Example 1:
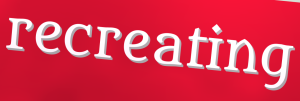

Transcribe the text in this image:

recreating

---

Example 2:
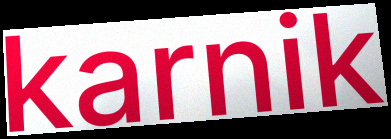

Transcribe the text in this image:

karnik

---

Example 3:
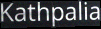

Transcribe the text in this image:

Kathpalia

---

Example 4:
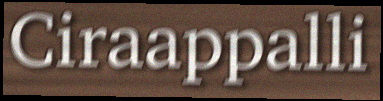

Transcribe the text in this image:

Ciraappalli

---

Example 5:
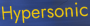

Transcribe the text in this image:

Hypersonic